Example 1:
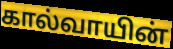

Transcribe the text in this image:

கால்வாயின்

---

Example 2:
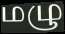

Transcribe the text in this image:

மழு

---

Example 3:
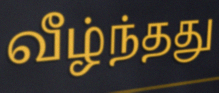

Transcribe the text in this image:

வீழ்ந்தது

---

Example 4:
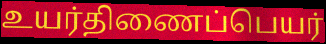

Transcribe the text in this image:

உயர்திணைப்பெயர்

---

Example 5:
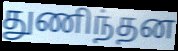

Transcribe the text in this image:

துணிந்தன